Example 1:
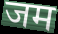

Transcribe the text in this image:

जम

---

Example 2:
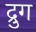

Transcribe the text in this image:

द्रुग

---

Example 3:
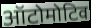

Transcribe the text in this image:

ऑटोमोटिव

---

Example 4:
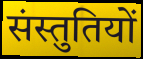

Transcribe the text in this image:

संस्तुतियों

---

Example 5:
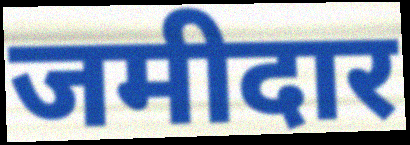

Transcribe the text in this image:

जमीदार